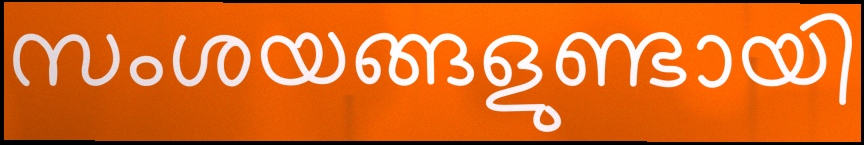
സംശയങ്ങളുണ്ടായി